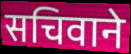
सचिवाने